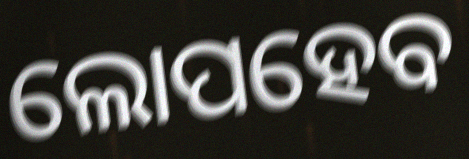
ଲୋପହେବ